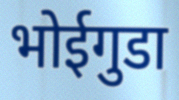
भोईगुडा